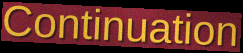
Continuation